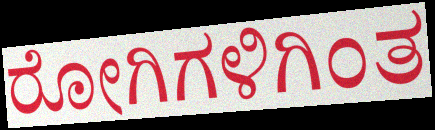
ರೋಗಿಗಳಿಗಿಂತ